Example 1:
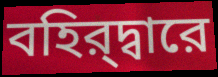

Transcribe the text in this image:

বহির্‌দ্বারে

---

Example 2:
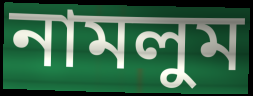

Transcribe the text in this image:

নামলুম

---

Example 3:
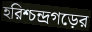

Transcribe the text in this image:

হরিশ্চন্দ্রগড়ের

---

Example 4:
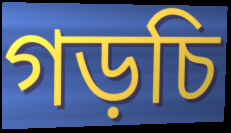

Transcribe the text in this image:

গড়চি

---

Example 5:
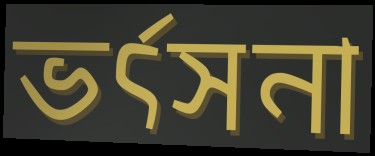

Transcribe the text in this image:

ভর্ৎসনা